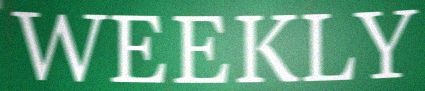
WEEKLY